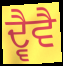
ਦ੍ਵੈਵੈ